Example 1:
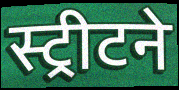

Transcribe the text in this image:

स्ट्रीटने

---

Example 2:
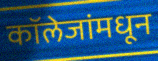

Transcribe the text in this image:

कॉलेजांमधून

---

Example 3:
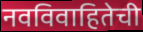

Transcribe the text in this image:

नवविवाहितेची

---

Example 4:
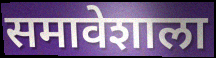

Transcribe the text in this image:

समावेशाला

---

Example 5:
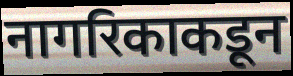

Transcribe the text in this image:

नागरिकाकडून